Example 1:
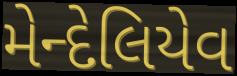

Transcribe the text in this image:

મેન્દેલિયેવ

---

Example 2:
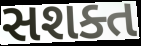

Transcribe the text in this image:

સશક્ત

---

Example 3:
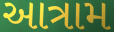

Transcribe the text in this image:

આત્રામ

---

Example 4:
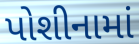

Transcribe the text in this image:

પોશીનામાં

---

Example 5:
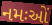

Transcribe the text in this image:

નમઃઓં